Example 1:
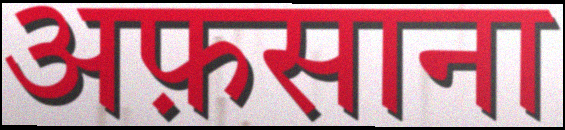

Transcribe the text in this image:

अफ़साना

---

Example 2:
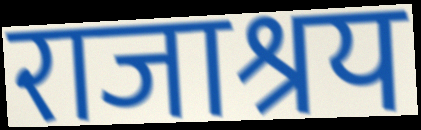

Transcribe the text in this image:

राजाश्रय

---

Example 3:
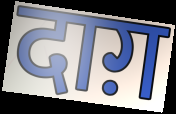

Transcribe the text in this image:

दाग़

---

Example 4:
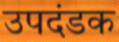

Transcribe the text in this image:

उपदंडक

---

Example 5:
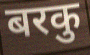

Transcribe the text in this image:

बरकु